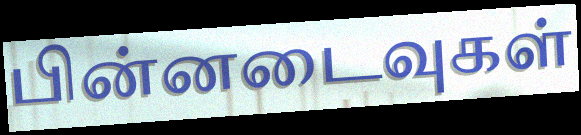
பின்னடைவுகள்